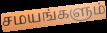
சமயங்களும்